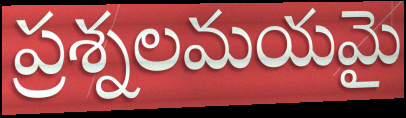
ప్రశ్నలమయమై